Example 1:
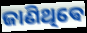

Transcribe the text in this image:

ଜାଣିଥିଵେ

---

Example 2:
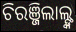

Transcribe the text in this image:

ଚିରଞ୍ଜିଲାଲ୍ଙ୍କ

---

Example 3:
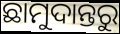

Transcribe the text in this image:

ଛାମୁଦାନ୍ତରୁ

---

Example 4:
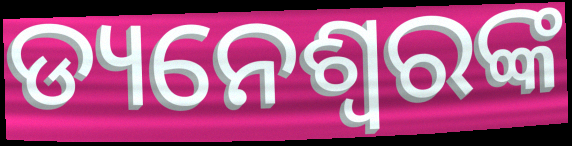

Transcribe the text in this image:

ଡ୍ୟନେଶ୍ୱରଙ୍କ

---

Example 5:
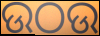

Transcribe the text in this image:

ଉଠଉ